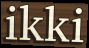
ikki